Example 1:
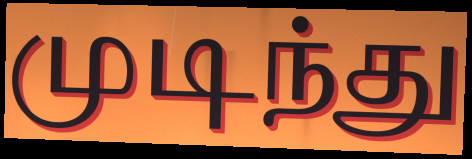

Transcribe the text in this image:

முடிந்து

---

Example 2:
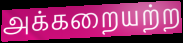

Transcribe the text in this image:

அக்கறையற்ற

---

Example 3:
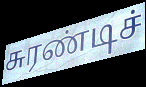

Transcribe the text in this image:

சுரண்டிச்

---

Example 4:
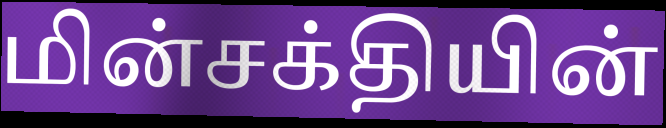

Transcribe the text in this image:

மின்சக்தியின்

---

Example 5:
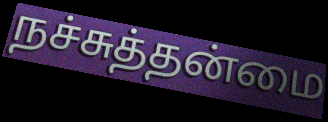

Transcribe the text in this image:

நச்சுத்தன்மை